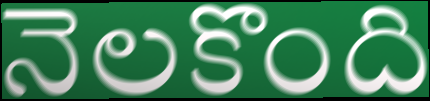
నెలకొంది